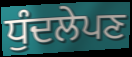
ਧੁੰਦਲੇਪਣ